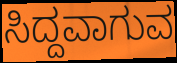
ಸಿದ್ದವಾಗುವ